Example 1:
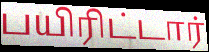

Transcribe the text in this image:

பயிரிட்டார்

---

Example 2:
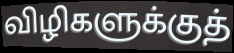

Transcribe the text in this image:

விழிகளுக்குத்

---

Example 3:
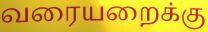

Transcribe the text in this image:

வரையறைக்கு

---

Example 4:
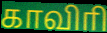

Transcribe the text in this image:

காவிரி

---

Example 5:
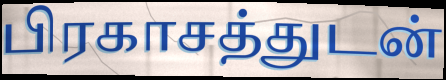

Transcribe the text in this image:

பிரகாசத்துடன்